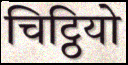
चिट्ठियो